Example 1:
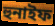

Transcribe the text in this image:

হুনাইফ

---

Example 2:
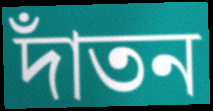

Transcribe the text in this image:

দাঁতন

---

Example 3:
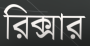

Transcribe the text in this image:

রিক্সার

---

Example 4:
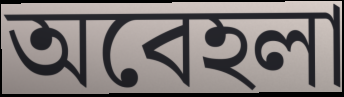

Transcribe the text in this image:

অবেহলা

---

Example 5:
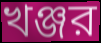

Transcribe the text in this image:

খঞ্জর